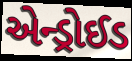
એન્ડ્રોઈડ